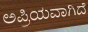
ಅಪ್ರಿಯವಾಗಿದೆ